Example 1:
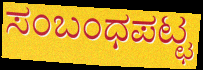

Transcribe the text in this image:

ಸಂಬಂಧಪಟ್ಟ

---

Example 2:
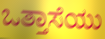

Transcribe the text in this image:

ಒತ್ತಾಸೆಯು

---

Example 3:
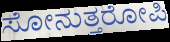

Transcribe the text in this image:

ಸೋನುತ್ತರೋಪಿ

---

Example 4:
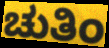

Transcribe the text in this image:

ಚುತಿಂ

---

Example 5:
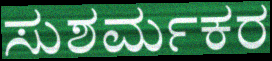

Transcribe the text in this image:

ಸುಶರ್ಮಕರ